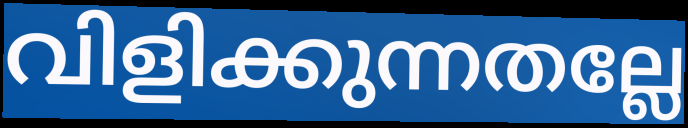
വിളിക്കുന്നതല്ലേ